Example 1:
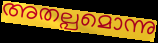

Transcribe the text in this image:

അതല്പമൊന്നു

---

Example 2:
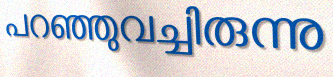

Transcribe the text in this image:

പറഞ്ഞുവച്ചിരുന്നു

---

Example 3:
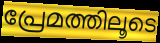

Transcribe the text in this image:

പ്രേമത്തിലൂടെ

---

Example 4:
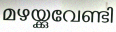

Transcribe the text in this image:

മഴയ്ക്കുവേണ്ടി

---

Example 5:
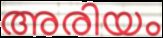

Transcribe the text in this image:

അരിയം